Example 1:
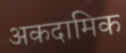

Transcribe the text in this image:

अकदामिक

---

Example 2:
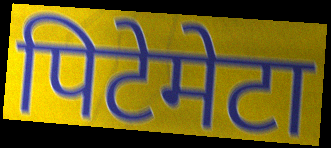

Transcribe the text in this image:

पिटेमेटा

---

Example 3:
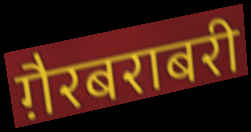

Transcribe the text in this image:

ग़ैरबराबरी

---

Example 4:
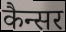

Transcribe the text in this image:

कैन्सर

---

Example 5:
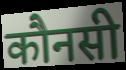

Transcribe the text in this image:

कौनसी